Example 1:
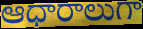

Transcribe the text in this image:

ఆధారాలుగా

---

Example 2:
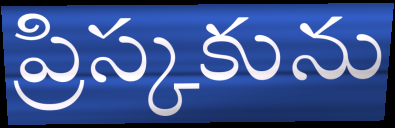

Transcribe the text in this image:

ప్రిస్కకును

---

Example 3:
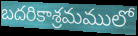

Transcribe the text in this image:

బదరికాశ్రమములో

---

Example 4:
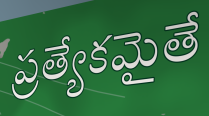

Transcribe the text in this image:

ప్రత్యేకమైతే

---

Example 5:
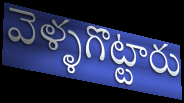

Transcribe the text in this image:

వెళ్ళగొట్టారు